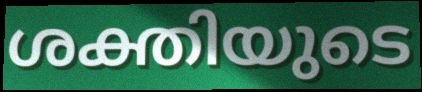
ശക്തിയുടെ